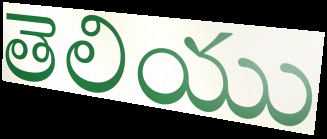
తెలియు